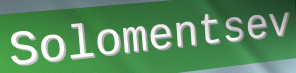
Solomentsev